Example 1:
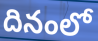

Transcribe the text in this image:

దినంలో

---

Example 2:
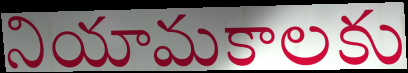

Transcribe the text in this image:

నియామకాలకు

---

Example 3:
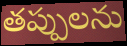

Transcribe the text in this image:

తప్పులను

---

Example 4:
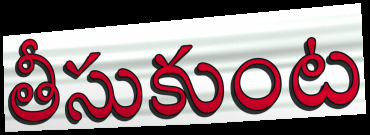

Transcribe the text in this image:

తీసుకుంట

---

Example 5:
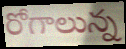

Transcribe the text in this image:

రోగాలున్న